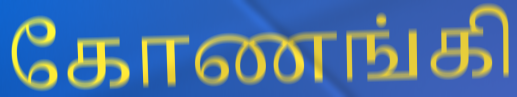
கோணங்கி